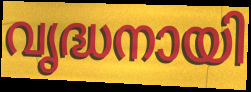
വൃദ്ധനായി